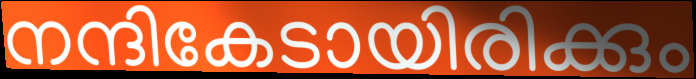
നന്ദികേടായിരിക്കും